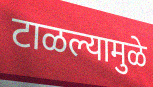
टाळल्यामुळे